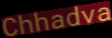
Chhadva